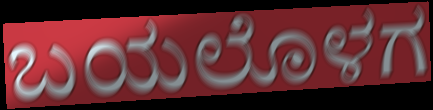
ಬಯಲೊಳಗ